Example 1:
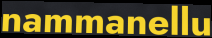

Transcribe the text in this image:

nammanellu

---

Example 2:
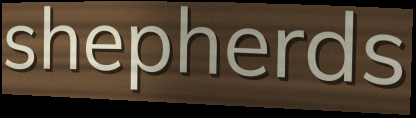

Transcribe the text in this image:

shepherds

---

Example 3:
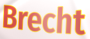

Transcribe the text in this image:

Brecht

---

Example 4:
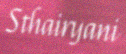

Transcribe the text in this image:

Sthairyani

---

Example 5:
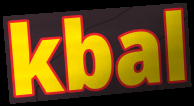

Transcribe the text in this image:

kbal